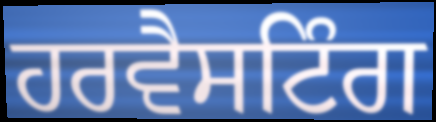
ਹਰਵੈਸਟਿੰਗ